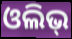
ଓଲିଭ୍